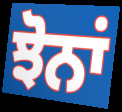
ਝੋਨਾਂ